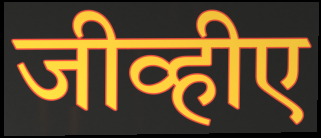
जीव्हीए